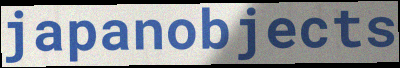
japanobjects